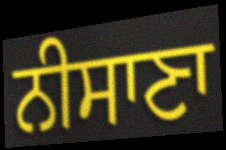
ਨੀਸਾਣਾ